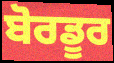
ਬੋਰਡੂਰ